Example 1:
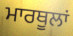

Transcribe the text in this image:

ਮਾਰਥੂਲਾਂ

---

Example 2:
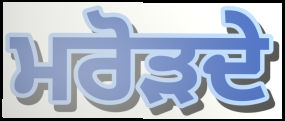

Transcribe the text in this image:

ਮਰੋੜਦੇ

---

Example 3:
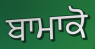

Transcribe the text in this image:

ਬਾਮਾਕੋ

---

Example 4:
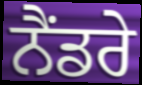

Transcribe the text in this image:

ਨੈਂਡਰੇ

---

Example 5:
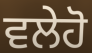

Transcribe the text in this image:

ਵਲੇਹੋ